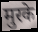
मुरके